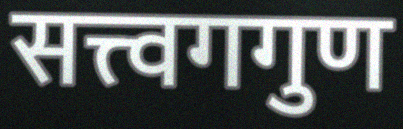
सत्त्वगगुण